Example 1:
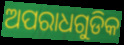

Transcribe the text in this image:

ଅପରାଧଗୁଡିକ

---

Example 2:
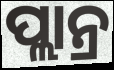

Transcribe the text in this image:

ପ୍ଲାନ୍ର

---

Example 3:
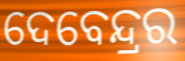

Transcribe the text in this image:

ଦେବେନ୍ଦ୍ରର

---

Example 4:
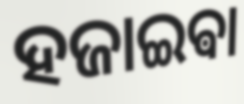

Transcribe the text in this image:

ହଜାଇଵା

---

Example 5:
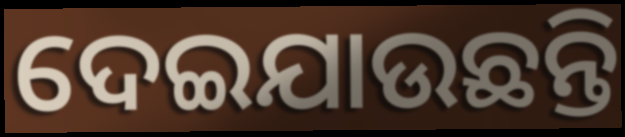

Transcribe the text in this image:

ଦେଇଯାଉଛନ୍ତି